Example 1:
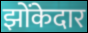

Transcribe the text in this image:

झोंकेदार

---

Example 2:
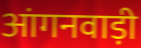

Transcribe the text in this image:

आंगनवाड़ी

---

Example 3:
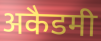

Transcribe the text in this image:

अकैडमी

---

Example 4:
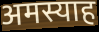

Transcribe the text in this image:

अमस्याह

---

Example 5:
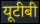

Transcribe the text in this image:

यूटीबी